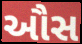
ઔસ